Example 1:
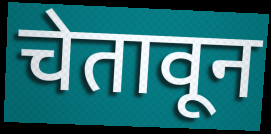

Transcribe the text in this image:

चेतावून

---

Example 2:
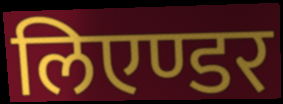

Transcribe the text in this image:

लिएण्डर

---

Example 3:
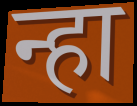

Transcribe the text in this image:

न्हा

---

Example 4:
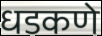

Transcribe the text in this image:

धडकणे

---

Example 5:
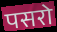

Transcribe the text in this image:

पसरो